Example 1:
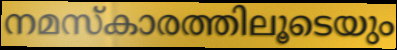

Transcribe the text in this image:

നമസ്കാരത്തിലൂടെയും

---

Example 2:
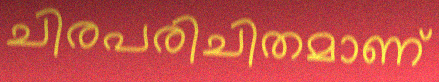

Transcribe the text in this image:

ചിരപരിചിതമാണ്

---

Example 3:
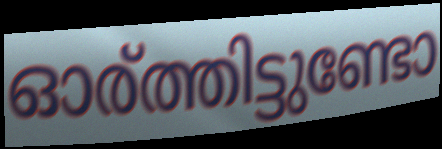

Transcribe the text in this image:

ഓര്ത്തിട്ടുണ്ടോ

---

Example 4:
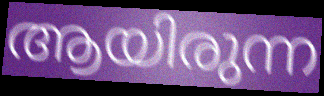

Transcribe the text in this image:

ആയിരുന്ന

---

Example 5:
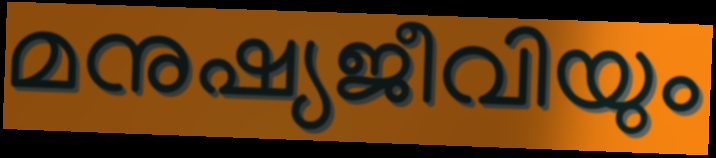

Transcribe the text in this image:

മനുഷ്യജീവിയും